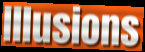
Illusions